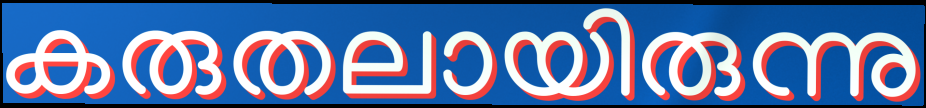
കരുതലായിരുന്നു